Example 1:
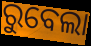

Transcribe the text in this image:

ରୁବେଲା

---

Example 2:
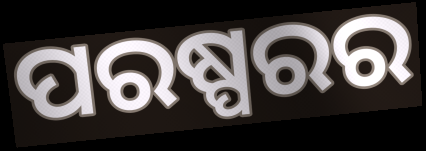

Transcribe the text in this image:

ପରଷ୍ପରର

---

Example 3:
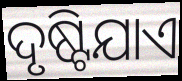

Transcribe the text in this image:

ଦୃଷ୍ଟିଯାଏ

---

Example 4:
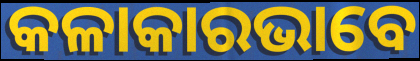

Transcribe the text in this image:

କଳାକାରଭାବେ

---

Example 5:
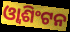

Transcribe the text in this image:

ଓ୍ୱାଶିଂଟନ